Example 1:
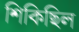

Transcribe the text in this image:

শিকিছিল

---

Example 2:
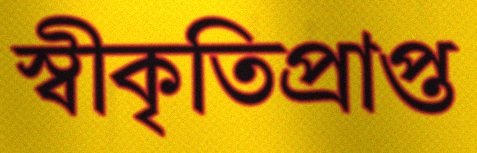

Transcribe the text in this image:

স্বীকৃতিপ্ৰাপ্ত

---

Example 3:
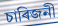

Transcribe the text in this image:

চাৰিজনী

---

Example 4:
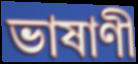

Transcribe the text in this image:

ভাষাণী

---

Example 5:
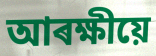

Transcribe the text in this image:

আৰক্ষীয়ে